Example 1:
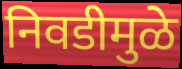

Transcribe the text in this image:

निवडीमुळे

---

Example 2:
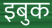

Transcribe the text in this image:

इबुक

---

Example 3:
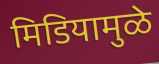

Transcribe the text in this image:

मिडियामुळे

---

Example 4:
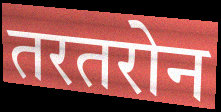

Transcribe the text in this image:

तरतरोन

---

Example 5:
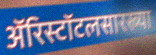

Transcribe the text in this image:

ॲरिस्टॉटलसारख्या